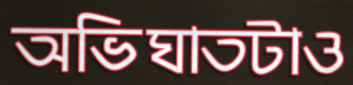
অভিঘাতটাও